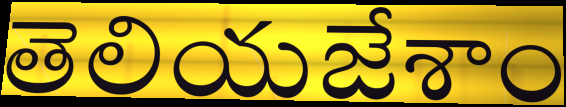
తెలియజేశాం